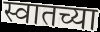
स्वातच्या